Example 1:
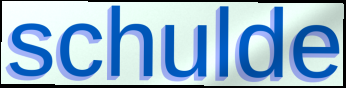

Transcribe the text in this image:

schulde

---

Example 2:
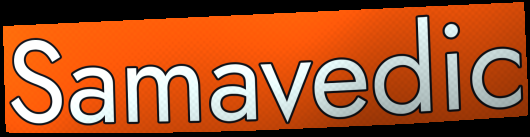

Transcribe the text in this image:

Samavedic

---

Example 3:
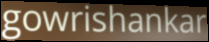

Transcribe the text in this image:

gowrishankar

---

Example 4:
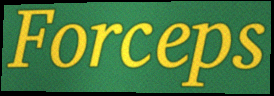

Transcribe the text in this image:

Forceps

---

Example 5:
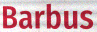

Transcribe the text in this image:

Barbus